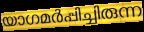
യാഗമർപ്പിച്ചിരുന്ന